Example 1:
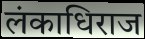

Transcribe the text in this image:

लंकाधिराज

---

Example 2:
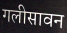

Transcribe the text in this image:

गलीसावन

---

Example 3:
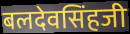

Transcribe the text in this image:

बलदेवसिंहजी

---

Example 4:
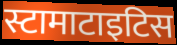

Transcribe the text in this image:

स्टामाटाइटिस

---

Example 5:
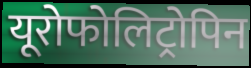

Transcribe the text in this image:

यूरोफोलिट्रोपिन